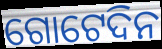
ଗୋଟେଦିନ